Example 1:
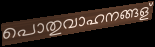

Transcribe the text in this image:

പൊതുവാഹനങ്ങള്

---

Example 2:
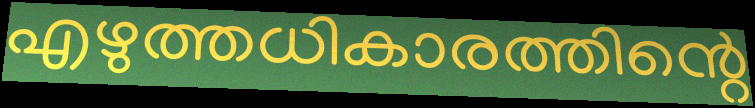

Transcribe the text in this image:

എഴുത്തധികാരത്തിന്റെ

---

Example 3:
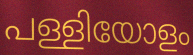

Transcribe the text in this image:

പള്ളിയോളം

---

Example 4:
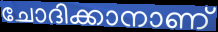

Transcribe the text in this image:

ചോദിക്കാനാണ്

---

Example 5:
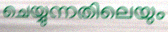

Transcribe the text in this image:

ചെയ്യുന്നതിലെയും